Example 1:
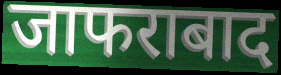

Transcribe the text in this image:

जाफराबाद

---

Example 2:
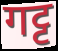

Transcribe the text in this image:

गट्ट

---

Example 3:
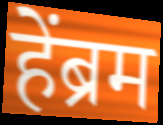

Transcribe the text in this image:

हेंब्रम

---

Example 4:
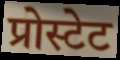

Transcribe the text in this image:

प्रोस्टेट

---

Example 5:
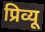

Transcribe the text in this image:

प्रिव्यू